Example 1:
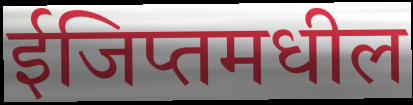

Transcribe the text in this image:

ईजिप्तमधील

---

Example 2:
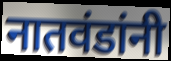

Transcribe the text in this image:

नातवंडांनी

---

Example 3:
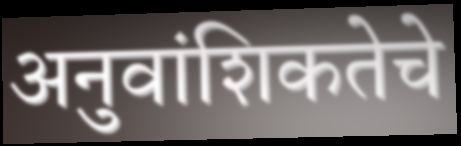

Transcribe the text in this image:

अनुवांशिकतेचे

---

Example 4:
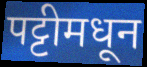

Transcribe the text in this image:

पट्टीमधून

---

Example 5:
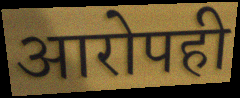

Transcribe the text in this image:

आरोपही